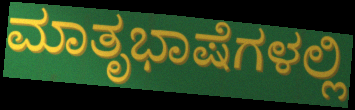
ಮಾತೃಭಾಷೆಗಳಲ್ಲಿ